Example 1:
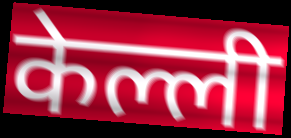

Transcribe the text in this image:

केल्ली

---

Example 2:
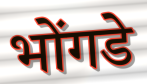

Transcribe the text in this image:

भोंगडे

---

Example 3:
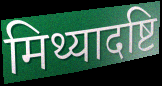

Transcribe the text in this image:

मिथ्यादष्टि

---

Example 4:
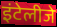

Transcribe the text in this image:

इंटेलीजे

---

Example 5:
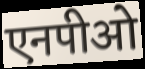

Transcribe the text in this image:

एनपीओ